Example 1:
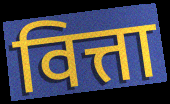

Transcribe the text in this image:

वित्ता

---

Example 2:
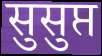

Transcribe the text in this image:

सुसुप्त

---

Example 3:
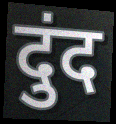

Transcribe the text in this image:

दुंद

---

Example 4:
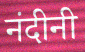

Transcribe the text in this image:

नंदीनी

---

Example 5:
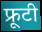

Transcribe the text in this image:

फ्रूटी